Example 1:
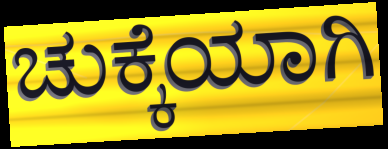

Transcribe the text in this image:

ಚುಕ್ಕೆಯಾಗಿ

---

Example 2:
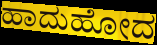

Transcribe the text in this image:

ಹಾದುಹೋದ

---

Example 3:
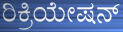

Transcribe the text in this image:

ರಿಕ್ರಿಯೇಷನ್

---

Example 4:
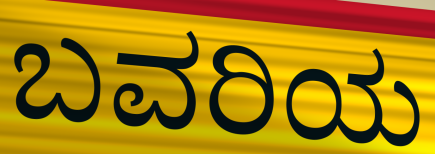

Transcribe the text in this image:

ಬವರಿಯ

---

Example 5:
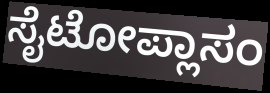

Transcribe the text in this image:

ಸೈಟೋಪ್ಲಾಸಂ